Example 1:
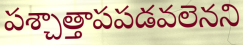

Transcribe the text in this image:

పశ్చాత్తాపపడవలెనని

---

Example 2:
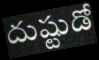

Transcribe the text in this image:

దుష్టుడో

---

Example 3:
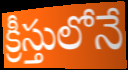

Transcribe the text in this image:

క్రీస్తులోనే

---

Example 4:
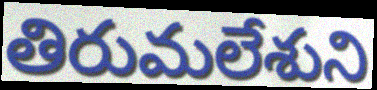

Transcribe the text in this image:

తిరుమలేశుని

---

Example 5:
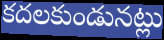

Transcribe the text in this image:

కదలకుండునట్లు